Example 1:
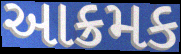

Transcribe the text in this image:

આક્રમક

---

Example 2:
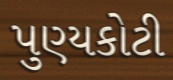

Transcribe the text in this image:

પુણ્યકોટી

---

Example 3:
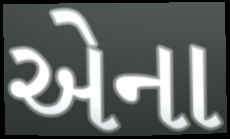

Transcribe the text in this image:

એના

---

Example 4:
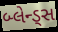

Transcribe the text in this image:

બ્લેન્ડ્સ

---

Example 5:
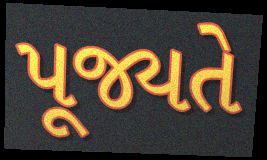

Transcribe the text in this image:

પૂજ્યતે